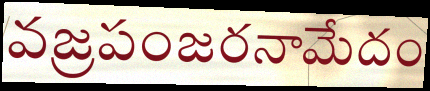
వజ్రపంజరనామేదం